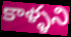
కాళ్ళని